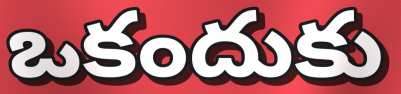
ఒకందుకు